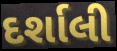
દર્શાલી